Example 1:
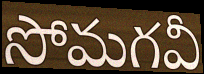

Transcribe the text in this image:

సోమగవీ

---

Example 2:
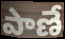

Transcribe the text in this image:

పాణే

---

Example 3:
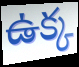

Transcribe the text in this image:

ఉక్క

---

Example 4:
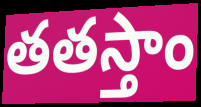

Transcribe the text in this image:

తతస్తాం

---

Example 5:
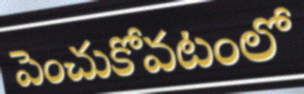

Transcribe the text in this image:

పెంచుకోవటంలో